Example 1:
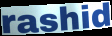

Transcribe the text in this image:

rashid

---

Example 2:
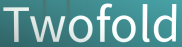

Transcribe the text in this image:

Twofold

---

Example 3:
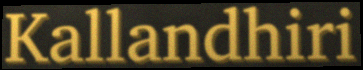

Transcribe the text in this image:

Kallandhiri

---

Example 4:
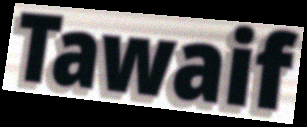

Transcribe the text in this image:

Tawaif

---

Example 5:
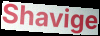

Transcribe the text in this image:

Shavige